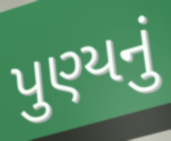
પુણ્યનું